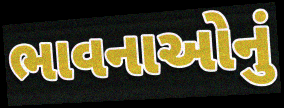
ભાવનાઓનું